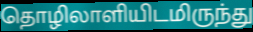
தொழிலாளியிடமிருந்து